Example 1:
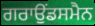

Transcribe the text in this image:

ਗਰਾਉਂਡਸਮੈਨ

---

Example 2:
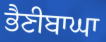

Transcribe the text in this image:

ਭੈਣੀਬਾਘਾ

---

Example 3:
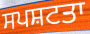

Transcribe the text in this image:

ਸਪਸ਼ਟਤਾ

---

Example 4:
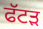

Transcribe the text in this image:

ਫੱਟੜ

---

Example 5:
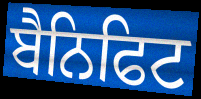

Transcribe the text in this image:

ਬੈਨਿਫਿਟ